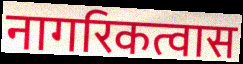
नागरिकत्वास